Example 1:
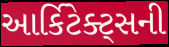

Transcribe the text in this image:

આર્કિટેક્ટ્સની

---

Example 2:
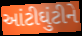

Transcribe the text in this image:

આંટીઘુંટીને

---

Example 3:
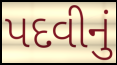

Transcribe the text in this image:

પદવીનું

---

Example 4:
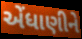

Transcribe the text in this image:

એંધાણીને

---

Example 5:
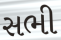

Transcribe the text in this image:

સભી